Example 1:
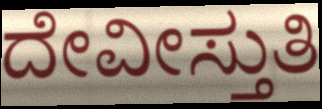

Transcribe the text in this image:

ದೇವೀಸ್ತುತಿ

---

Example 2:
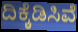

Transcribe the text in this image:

ದಿಕ್ಕೆಡಿಸಿವೆ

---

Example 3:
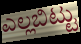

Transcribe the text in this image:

ಎಲ್ಲಬಿಟ್ಟು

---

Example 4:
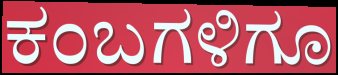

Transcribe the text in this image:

ಕಂಬಗಳಿಗೂ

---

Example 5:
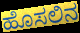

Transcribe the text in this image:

ಹೊಸಲಿನ